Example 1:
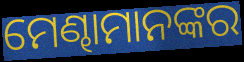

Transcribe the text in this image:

ମେଣ୍ଢାମାନଙ୍କର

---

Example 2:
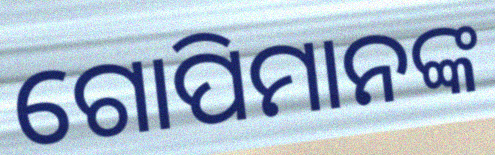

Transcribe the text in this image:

ଗୋପିମାନଙ୍କ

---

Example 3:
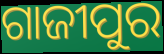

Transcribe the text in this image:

ଗାଜୀପୁର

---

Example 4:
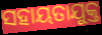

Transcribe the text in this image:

ସହାୟତାଯୁକ୍ତ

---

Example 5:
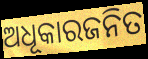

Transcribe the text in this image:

ଅଧୂକାରଜନିତ